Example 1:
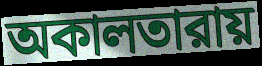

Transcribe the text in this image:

অকালতারায়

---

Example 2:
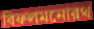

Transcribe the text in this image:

বিফলমনোরথ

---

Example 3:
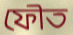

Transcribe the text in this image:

ফৌত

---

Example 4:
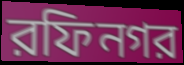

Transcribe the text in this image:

রফিনগর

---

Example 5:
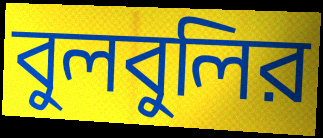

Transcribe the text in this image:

বুলবুলির